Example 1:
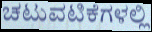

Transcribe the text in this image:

ಚಟುವಟಿಕೆಗಳಲ್ಲಿ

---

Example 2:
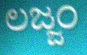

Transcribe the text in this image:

ಲಜ್ಜಂ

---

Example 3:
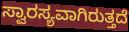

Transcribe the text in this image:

ಸ್ವಾರಸ್ಯವಾಗಿರುತ್ತದೆ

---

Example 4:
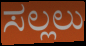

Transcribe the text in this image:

ಸಲ್ಲಲು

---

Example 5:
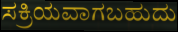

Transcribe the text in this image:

ಸಕ್ರಿಯವಾಗಬಹುದು